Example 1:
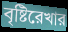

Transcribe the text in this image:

বৃষ্টিরেখার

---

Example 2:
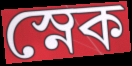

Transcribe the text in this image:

স্নেক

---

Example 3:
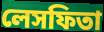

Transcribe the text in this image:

লেসফিতা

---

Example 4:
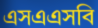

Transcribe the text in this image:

এসএএসবি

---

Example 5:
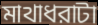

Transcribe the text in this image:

মাথাধরাটা